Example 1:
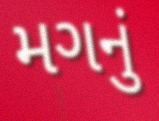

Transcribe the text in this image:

મગનું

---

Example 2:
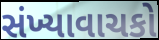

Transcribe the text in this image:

સંખ્યાવાચકો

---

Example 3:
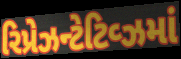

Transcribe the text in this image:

રિપ્રેઝન્ટેટિવ્ઝમાં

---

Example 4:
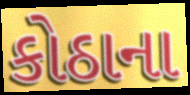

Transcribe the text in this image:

કોઠાના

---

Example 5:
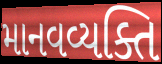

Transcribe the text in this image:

માનવવ્યક્તિ